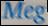
Meg